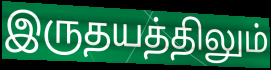
இருதயத்திலும்